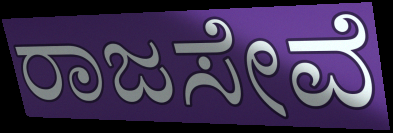
ರಾಜಸೇವೆ